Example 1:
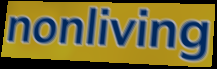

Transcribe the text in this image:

nonliving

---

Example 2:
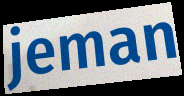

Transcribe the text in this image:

jeman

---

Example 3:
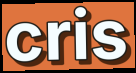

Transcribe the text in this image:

cris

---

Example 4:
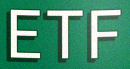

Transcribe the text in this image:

ETF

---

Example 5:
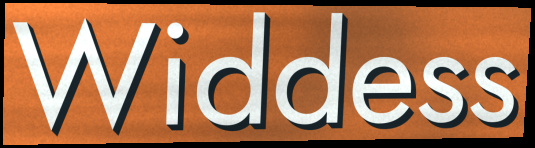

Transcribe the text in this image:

Widdess